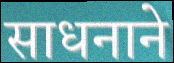
साधनाने